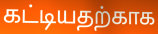
கட்டியதற்காக